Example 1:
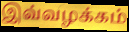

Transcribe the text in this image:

இவ்வழக்கம்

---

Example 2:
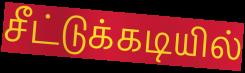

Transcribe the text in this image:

சீட்டுக்கடியில்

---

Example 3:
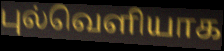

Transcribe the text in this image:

புல்வெளியாக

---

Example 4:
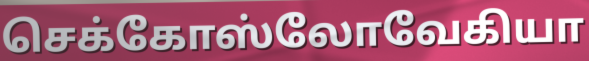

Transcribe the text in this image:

செக்கோஸ்லோவேகியா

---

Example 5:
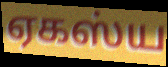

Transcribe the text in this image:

ஏகஸ்ய